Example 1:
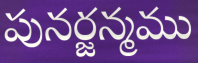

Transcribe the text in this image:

పునర్జన్మము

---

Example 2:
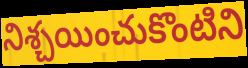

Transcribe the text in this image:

నిశ్చయించుకొంటిని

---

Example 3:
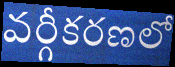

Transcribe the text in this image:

వర్గీకరణలో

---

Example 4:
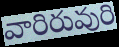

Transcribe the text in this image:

వారిరువురి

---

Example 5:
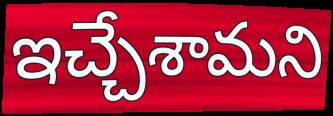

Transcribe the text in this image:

ఇచ్చేశామని